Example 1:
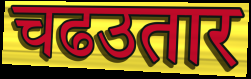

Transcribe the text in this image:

चढउतार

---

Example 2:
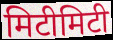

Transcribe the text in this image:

मिटीमिटी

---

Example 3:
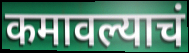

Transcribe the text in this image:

कमावल्याचं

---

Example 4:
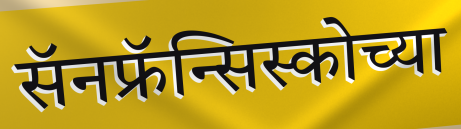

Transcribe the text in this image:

सॅनफ्रॅन्सिस्कोच्या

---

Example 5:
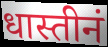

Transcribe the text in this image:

धास्तीनं